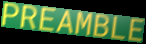
PREAMBLE